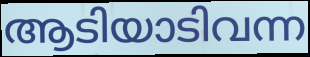
ആടിയാടിവന്ന